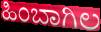
ಹಿಂಬಾಗಿಲ